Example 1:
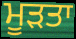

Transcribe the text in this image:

ਮੂੜਤਾ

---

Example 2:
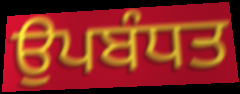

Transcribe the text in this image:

ਉਪਬੰਧਤ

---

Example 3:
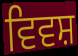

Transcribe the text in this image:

ਵਿਵਸ਼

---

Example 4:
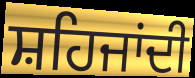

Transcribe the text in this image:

ਸ਼ਹਿਜਾਂਦੀ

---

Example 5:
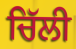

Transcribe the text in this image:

ਚਿੱਲੀ